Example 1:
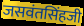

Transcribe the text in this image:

जसवंतसिंहजी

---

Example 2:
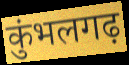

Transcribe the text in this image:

कुंभलगढ़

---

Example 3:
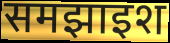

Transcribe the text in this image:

समझाइश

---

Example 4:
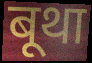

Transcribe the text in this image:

बूथा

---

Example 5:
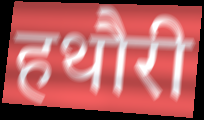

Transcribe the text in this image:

हथौरी